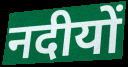
नदीयों